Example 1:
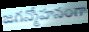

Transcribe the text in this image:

జగన్మోహనంగా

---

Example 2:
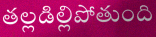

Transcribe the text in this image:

తల్లడిల్లిపోతుంది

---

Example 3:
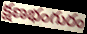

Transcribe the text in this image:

క్షణభంగురం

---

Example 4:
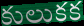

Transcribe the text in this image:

కులుకక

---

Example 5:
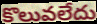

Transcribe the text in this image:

కొలువలేదు